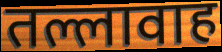
तल्लावाह